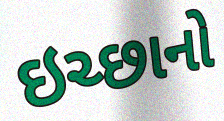
ઇચ્છાનો